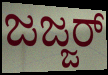
ಜಜ್ಜರ್